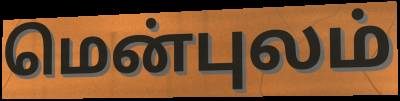
மென்புலம்